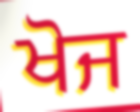
ਖੋਜ